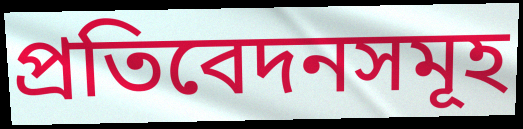
প্ৰতিবেদনসমূহ